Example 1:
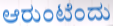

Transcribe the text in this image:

ಆರುಂಟೆಂದು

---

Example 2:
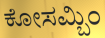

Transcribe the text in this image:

ಕೋಸಮ್ಬಿಂ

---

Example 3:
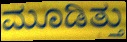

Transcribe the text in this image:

ಮೂಡಿತ್ತು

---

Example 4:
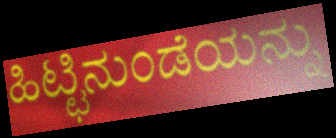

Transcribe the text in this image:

ಹಿಟ್ಟಿನುಂಡೆಯನ್ನು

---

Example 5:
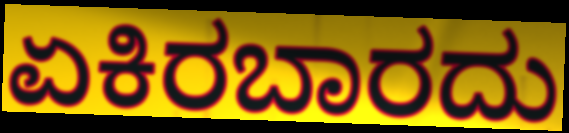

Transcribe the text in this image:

ಏಕಿರಬಾರದು